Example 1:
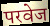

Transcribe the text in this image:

परवेज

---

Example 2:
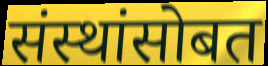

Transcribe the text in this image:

संस्थांसोबत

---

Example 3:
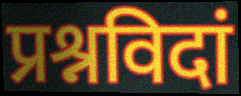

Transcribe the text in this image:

प्रश्नविदां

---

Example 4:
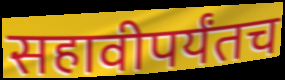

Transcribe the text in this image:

सहावीपर्यंतच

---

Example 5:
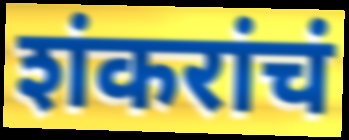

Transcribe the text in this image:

शंकरांचं